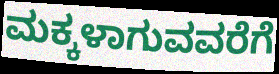
ಮಕ್ಕಳಾಗುವವರೆಗೆ